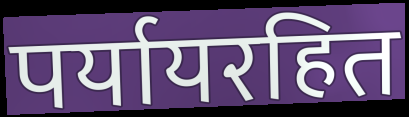
पर्यायरहित